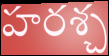
హరశ్చ